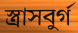
স্ত্রাসবুর্গ